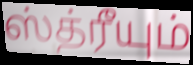
ஸ்த்ரீயும்